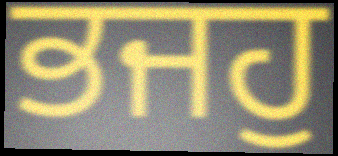
ਭਜਹੁ